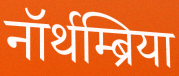
नॉर्थम्ब्रिया